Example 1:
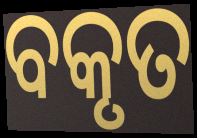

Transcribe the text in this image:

ବକୃତ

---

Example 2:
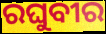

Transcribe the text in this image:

ରଘୁବୀର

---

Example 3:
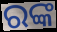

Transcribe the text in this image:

ରଙ୍କ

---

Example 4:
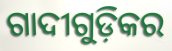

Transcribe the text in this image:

ଗାଦୀଗୁଡ଼ିକର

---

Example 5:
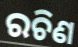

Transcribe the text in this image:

ରଚିଣ